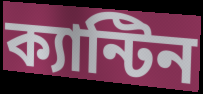
ক্যান্টিন